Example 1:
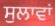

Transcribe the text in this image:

ਸੁਲਾਵਾਂ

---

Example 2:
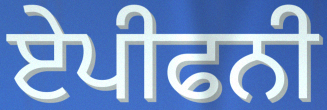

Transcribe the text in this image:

ਏਪੀਫਨੀ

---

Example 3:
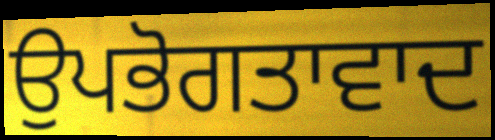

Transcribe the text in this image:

ਉਪਭੋਗਤਾਵਾਦ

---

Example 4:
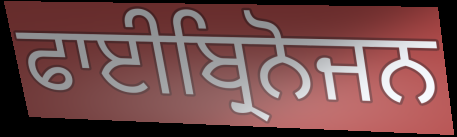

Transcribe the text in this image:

ਫਾਈਬ੍ਰਿਨੋਜਨ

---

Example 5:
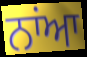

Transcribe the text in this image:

ਨਾਂਆ